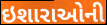
ઇશારાઓની